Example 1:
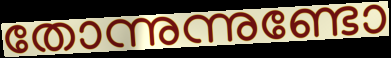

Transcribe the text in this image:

തോന്നുന്നുണ്ടോ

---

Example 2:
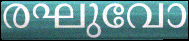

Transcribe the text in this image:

രഘുവോ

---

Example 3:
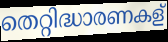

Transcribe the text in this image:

തെറ്റിദ്ധാരണകള്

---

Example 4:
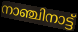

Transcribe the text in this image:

നാഞ്ചിനാട്ട്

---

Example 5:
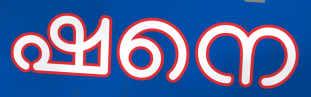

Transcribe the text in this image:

ഷനെ